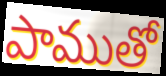
పాముతో